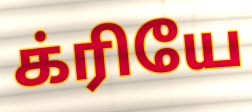
க்ரியே